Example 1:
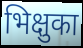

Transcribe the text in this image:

भिक्षुका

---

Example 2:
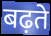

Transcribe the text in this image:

बढ़ते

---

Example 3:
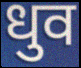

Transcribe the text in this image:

धुव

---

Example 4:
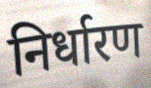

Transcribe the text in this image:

निर्धारण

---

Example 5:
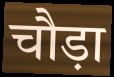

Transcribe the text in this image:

चौड़ा